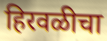
हिरवळीचा